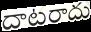
దాటరాదు